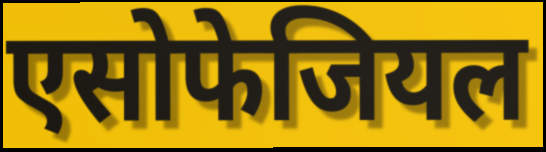
एसोफेजियल